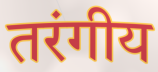
तरंगीय